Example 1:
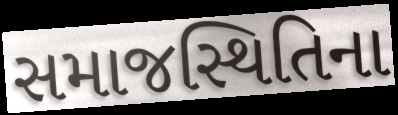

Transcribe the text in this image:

સમાજસ્થિતિના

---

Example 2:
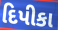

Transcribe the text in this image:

દિપીકા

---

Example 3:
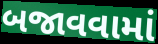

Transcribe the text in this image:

બજાવવામાં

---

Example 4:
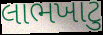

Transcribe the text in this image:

લાભખાટુ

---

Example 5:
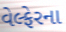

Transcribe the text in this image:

વેલ્ફેરના